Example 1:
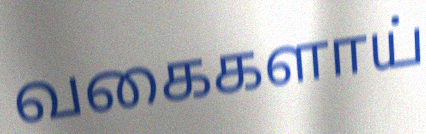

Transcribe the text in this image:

வகைகளாய்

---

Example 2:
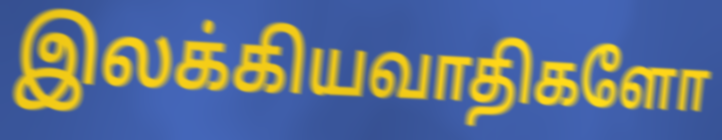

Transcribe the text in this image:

இலக்கியவாதிகளோ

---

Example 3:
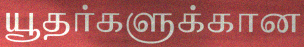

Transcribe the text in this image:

யூதர்களுக்கான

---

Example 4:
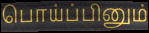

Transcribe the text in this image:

பொய்ப்பினும்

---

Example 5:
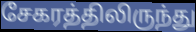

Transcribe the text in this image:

சேகரத்திலிருந்து